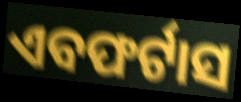
ଏବଫର୍ଟାସ